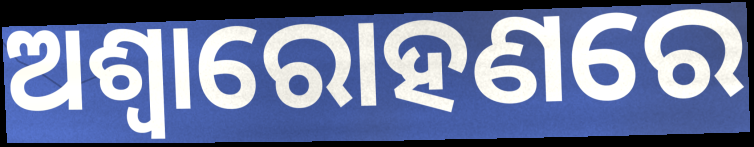
ଅଶ୍ଵାରୋହଣରେ